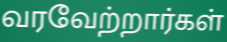
வரவேற்றார்கள்